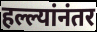
हल्ल्यांनंतर